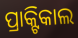
ପ୍ରାକ୍ଟିକାଲ